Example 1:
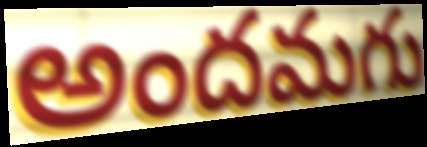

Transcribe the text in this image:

అందమగు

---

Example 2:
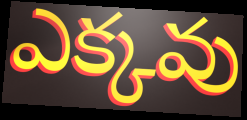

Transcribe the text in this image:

ఎక్కవు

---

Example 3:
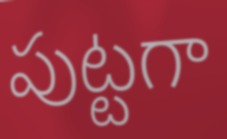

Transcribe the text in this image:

పుట్టగా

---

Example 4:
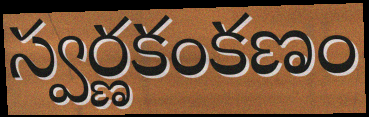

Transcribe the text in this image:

స్వర్ణకంకణం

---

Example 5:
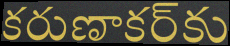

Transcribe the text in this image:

కరుణాకర్‌కు